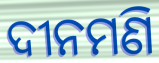
ଦୀନମଣି